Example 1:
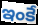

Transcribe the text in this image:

ఇంకే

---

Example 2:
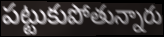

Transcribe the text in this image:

పట్టుకుపోతున్నారు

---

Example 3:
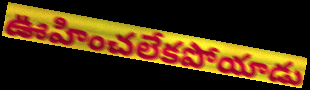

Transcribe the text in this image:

ఊహించలేకపోయాడు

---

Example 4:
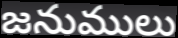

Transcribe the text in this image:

జనుములు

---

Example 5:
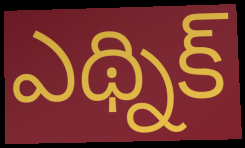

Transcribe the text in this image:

ఎథ్నిక్